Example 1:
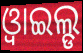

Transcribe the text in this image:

ଓ୍ବାଇଲ୍ଡ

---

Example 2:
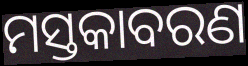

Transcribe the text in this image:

ମସ୍ତକାବରଣ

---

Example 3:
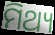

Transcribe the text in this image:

ମିଥ୍ୟ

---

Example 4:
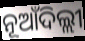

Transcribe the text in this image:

ନୂଆଁଦିଲ୍ଲୀ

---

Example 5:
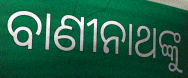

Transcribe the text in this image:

ବାଣୀନାଥଙ୍କୁ